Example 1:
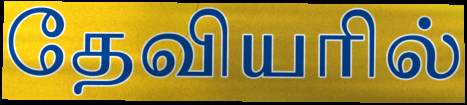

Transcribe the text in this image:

தேவியரில்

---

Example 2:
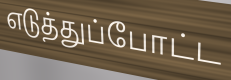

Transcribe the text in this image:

எடுத்துப்போட்ட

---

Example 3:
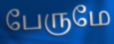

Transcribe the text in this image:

பேருமே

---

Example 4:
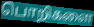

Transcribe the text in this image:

பொறிகளை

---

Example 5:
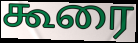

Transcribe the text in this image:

கூரை